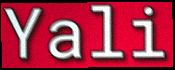
Yali